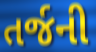
તર્જની